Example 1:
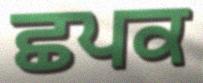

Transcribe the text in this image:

ਛਪਕ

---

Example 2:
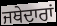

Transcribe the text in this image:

ਜਥੇਦਾਰਾਂ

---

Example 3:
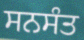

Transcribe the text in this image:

ਸਨਸੰਤ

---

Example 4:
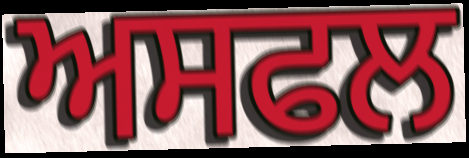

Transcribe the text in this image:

ਅਸਫਲ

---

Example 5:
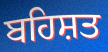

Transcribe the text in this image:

ਬਹਿਸ਼ਤ